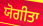
ਯੋਗੀਤਾ